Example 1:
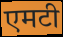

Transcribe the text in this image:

एमटी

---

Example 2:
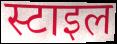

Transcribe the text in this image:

स्टाइल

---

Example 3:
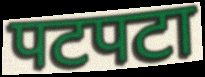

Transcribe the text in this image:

पटपटा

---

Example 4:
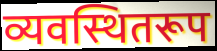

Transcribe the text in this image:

व्यवस्थितरूप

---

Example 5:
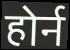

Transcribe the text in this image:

होर्न